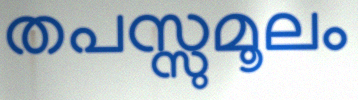
തപസ്സുമൂലം